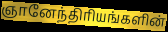
ஞானேந்திரியங்களின்